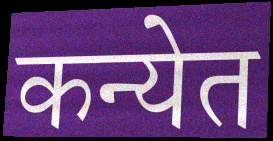
कन्येत